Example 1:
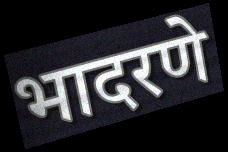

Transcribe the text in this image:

भादरणे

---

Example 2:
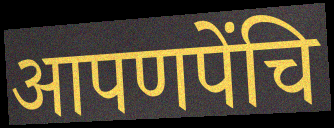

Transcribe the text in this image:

आपणपेंचि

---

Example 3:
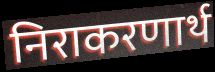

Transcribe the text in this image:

निराकरणार्थ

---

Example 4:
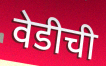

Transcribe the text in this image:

वेडीची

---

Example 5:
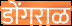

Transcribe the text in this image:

डोंगराळ